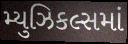
મ્યુઝિકલ્સમાં